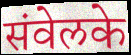
संवेलके